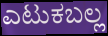
ಎಟುಕಬಲ್ಲ